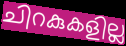
ചിറകുകളില്ല